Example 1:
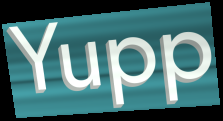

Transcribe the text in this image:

Yupp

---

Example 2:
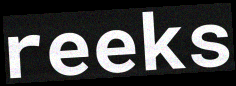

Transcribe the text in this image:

reeks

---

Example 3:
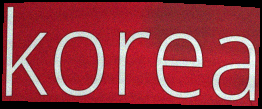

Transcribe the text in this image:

korea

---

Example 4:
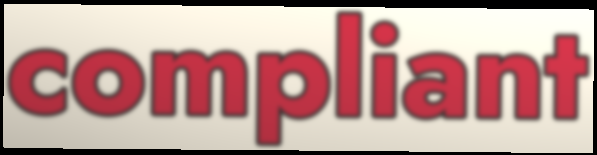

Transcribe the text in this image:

compliant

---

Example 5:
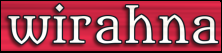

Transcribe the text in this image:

wirahna